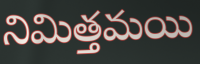
నిమిత్తమయి